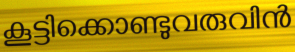
കൂട്ടിക്കൊണ്ടുവരുവിൻ